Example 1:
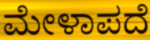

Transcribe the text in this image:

ಮೇಳಾಪದೆ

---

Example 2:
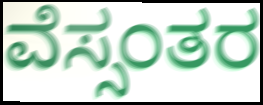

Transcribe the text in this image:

ವೆಸ್ಸಂತರ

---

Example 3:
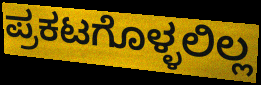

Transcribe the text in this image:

ಪ್ರಕಟಗೊಳ್ಳಲಿಲ್ಲ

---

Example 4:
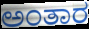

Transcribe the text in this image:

ಅಂತಾರ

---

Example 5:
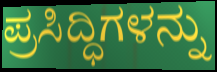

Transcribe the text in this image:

ಪ್ರಸಿದ್ಧಿಗಳನ್ನು